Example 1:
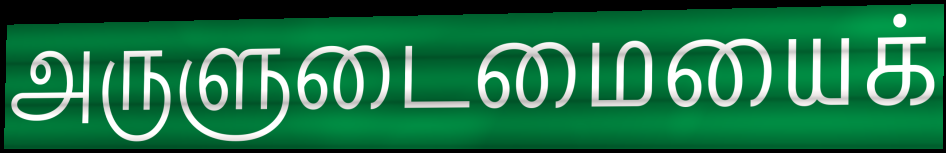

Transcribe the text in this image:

அருளுடைமையைக்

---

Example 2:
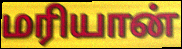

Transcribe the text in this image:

மரியான்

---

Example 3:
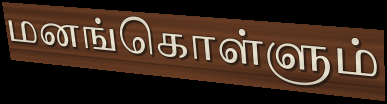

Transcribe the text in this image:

மனங்கொள்ளும்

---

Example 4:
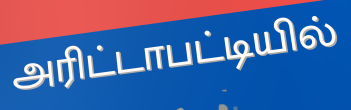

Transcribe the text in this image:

அரிட்டாபட்டியில்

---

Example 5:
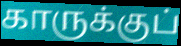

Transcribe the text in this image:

காருக்குப்